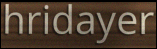
hridayer